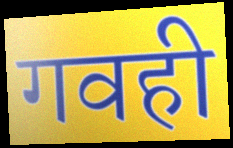
गवही